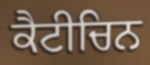
ਕੈਟੀਚਿਨ